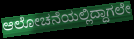
ಆಲೋಚನೆಯಲ್ಲಿದ್ದಾಗಲೇ